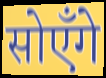
सोएँगे